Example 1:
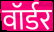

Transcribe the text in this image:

वॉर्डर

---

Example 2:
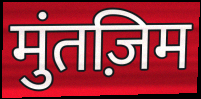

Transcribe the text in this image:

मुंतज़िम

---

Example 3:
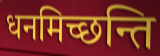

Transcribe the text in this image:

धनमिच्छन्ति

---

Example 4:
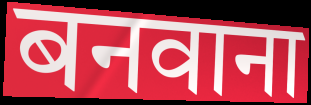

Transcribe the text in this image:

बनवाना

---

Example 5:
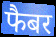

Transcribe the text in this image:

फैबर